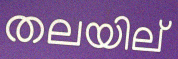
തലയില്